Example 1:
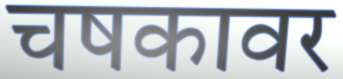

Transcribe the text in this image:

चषकावर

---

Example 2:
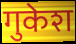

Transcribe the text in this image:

गुकेश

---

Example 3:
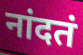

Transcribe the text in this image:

नांदतं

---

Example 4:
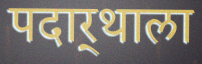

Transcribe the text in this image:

पदार्थाला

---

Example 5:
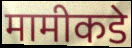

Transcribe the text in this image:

मामीकडे